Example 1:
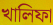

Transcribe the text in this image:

খালিফা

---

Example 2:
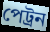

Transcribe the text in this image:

পেট্ৰন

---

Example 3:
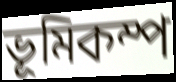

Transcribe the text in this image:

ভূমিকম্প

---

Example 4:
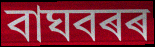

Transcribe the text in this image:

বাঘবৰৰ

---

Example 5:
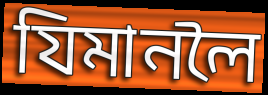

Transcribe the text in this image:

যিমানলৈ